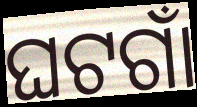
ଘଟଗାଁ